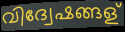
വിദ്വേഷങ്ങള്